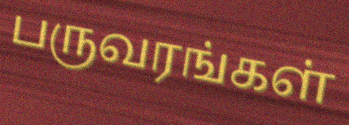
பருவரங்கள்